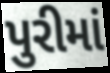
પુરીમાં